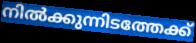
നിൽക്കുന്നിടത്തേക്ക്